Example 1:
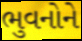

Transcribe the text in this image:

ભુવનોને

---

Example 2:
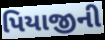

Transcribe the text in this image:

પિયાજીની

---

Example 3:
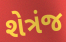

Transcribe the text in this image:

શેત્રંજ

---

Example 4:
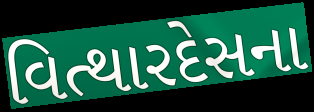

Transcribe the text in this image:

વિત્થારદેસના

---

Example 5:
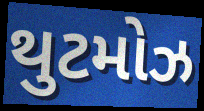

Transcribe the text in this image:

થુટમોઝ